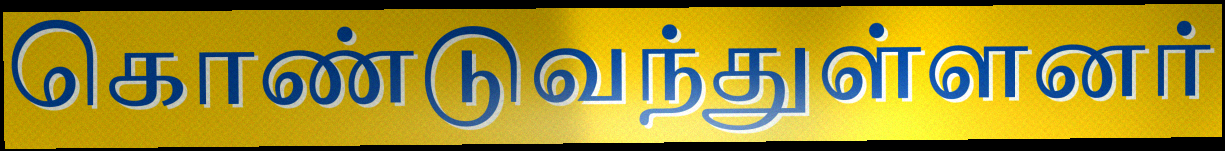
கொண்டுவந்துள்ளனர்